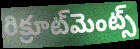
రిక్రూట్‌మెంట్స్